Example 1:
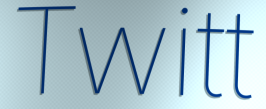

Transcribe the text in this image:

Twitt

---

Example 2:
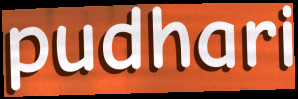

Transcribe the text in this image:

pudhari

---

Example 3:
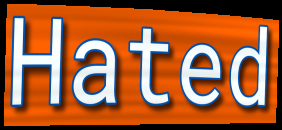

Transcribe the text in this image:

Hated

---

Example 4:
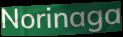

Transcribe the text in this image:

Norinaga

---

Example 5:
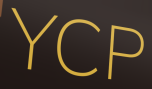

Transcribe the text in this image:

YCP